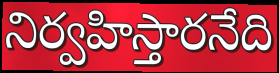
నిర్వహిస్తారనేది